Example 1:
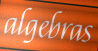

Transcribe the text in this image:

algebras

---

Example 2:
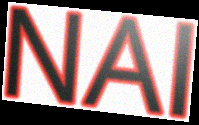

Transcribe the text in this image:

NAI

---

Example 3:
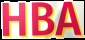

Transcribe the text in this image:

HBA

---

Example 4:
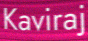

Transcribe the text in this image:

Kaviraj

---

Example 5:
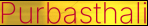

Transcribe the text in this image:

Purbasthali